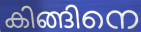
കിങ്ങിനെ